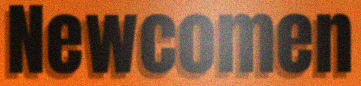
Newcomen